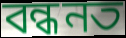
বন্ধনত